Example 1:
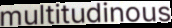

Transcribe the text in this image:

multitudinous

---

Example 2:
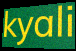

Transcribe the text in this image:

kyali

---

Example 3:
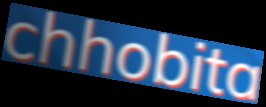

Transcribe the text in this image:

chhobita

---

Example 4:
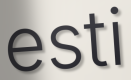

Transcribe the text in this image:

esti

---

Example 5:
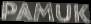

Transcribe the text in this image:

PAMUK